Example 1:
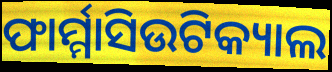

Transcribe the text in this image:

ଫାର୍ମ୍ମାସିଉଟିକ୍ୟାଲ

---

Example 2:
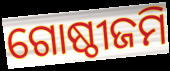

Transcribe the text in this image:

ଗୋଷ୍ଠୀଜମି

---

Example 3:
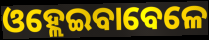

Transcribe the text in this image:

ଓହ୍ଲେଇବାବେଳେ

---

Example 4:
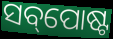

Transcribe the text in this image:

ସବ୍‌ପୋଷ୍ଟ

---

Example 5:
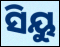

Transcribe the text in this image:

ସିୟୁ